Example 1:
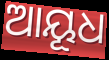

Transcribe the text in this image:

ଆୟୂଧ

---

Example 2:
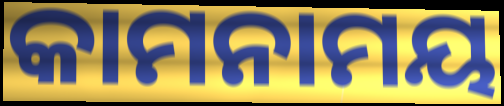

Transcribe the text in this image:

କାମନାମୟ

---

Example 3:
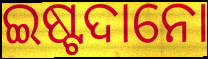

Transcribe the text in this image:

ଇଷ୍ଟଦାନୋ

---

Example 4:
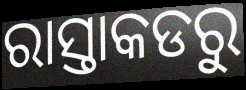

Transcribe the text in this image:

ରାସ୍ତାକଡରୁ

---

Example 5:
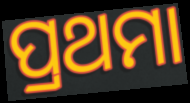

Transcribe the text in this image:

ପ୍ରଥମା